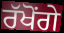
ਰੱਖੋਂਗੇ